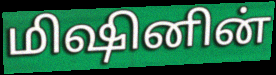
மிஷினின்